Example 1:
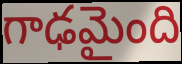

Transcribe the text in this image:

గాఢమైంది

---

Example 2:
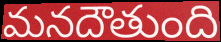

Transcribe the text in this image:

మనదౌతుంది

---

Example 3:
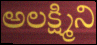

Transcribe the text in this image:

అలక్ష్మిని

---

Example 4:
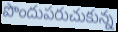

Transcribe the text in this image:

పొందుపరుచుకున్న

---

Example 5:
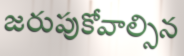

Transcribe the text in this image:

జరుపుకోవాల్సిన